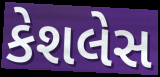
કેશલેસ